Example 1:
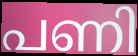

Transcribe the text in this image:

പണി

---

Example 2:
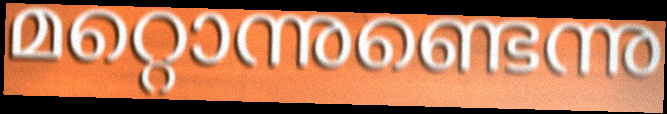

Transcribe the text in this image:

മറ്റൊന്നുണ്ടെന്നു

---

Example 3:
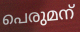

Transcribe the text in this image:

പെരുമന്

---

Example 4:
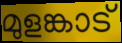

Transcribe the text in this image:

മുളങ്കാട്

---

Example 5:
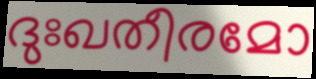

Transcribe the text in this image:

ദുഃഖതീരമോ